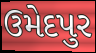
ઉમેદપુર